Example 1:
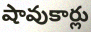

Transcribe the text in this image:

షావుకార్లు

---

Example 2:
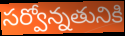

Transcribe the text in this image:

సర్వోన్నతునికి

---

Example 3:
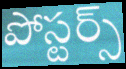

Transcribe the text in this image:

పోస్టర్స్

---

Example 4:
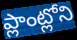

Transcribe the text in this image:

ప్లాంట్లోని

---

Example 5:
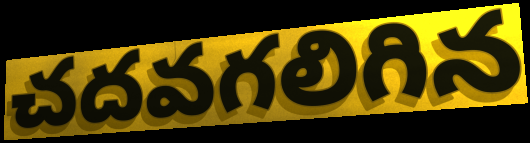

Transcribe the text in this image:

చదవగలిగిన